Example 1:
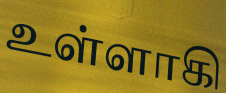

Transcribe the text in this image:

உள்ளாகி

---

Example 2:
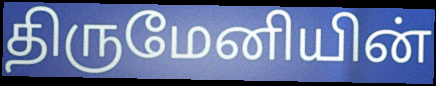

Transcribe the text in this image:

திருமேனியின்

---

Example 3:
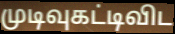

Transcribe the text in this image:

முடிவுகட்டிவிட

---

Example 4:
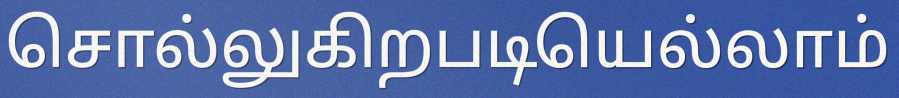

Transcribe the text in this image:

சொல்லுகிறபடியெல்லாம்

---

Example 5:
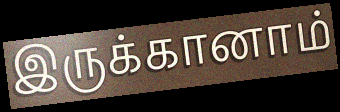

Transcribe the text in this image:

இருக்கானாம்